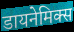
डायनेमिक्स